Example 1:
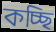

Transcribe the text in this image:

কচ্ছি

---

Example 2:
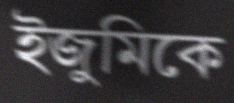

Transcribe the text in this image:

ইজুমিকে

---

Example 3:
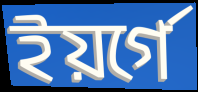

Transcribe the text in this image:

ইয়র্গে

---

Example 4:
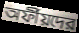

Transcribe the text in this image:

অর্ফীয়দের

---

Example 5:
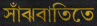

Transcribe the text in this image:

সাঁঝবাতিতে